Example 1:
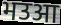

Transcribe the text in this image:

भउआ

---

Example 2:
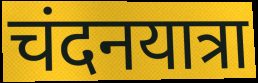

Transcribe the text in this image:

चंदनयात्रा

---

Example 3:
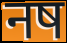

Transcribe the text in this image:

नष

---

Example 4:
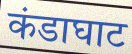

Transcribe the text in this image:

कंडाघाट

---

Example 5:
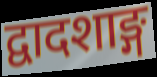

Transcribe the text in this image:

द्वादशाङ्ग